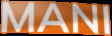
MANI